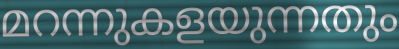
മറന്നുകളയുന്നതും